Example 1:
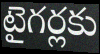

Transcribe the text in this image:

టైగర్లకు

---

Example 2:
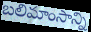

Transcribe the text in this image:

బలిమాంసాన్ని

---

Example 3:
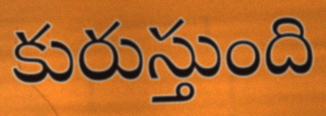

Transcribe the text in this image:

కురుస్తుంది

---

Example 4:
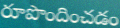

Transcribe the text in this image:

రూపొందించడం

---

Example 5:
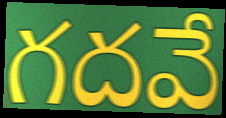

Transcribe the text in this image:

గదవే